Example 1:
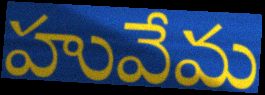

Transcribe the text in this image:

హువేమ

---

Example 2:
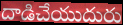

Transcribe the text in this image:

దాడిచేయుదురు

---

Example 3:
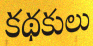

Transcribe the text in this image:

కథకులు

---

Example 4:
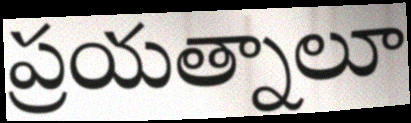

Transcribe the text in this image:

ప్రయత్నాలూ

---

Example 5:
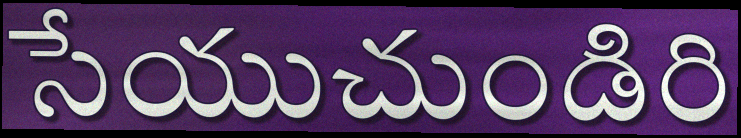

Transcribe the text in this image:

సేయుచుండిరి